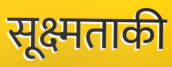
सूक्ष्मताकी